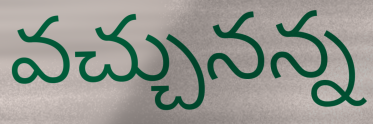
వచ్చునన్న